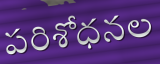
పరిశోధనల